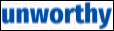
unworthy